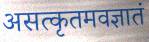
असत्कृतमवज्ञातं